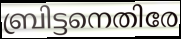
ബ്രിട്ടനെതിരേ